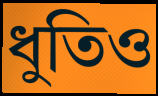
ধুতিও